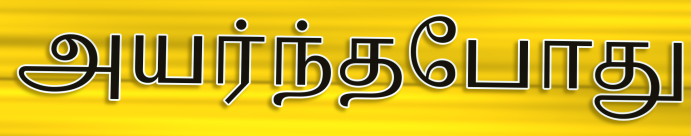
அயர்ந்தபோது